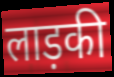
लाड़की